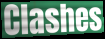
Clashes